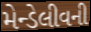
મેન્ડેલીવની